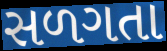
સળગતા